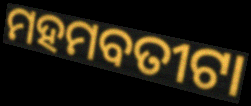
ମହମବତୀଟା